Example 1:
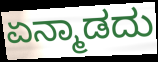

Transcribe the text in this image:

ಏನ್ಮಾಡದು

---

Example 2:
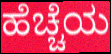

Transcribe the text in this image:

ಹೆಚ್ಚೆಯ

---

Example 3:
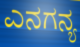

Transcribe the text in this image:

ಎನಗನ್ಯ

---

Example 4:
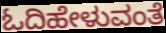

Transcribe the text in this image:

ಓದಿಹೇಳುವಂತೆ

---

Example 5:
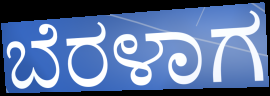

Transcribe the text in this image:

ಬೆರಳಾಗ